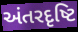
અંતરદૃષ્ટિ